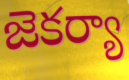
జెకర్యా